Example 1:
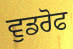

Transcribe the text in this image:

ਵੁਡਰੋਫ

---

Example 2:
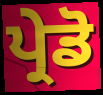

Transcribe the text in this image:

ਪ੍ਰੇਡੋ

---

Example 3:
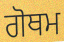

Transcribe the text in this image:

ਗੋਥਮ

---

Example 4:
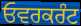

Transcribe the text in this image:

ਓਵਰਕਰੰਟ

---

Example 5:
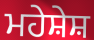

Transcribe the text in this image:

ਮਹੇਸ਼ੇਸ਼